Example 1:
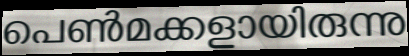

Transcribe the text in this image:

പെൺമക്കളായിരുന്നു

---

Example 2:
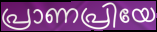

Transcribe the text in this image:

പ്രാണപ്രിയേ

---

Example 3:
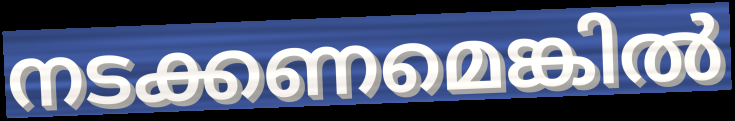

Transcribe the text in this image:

നടക്കണമെങ്കിൽ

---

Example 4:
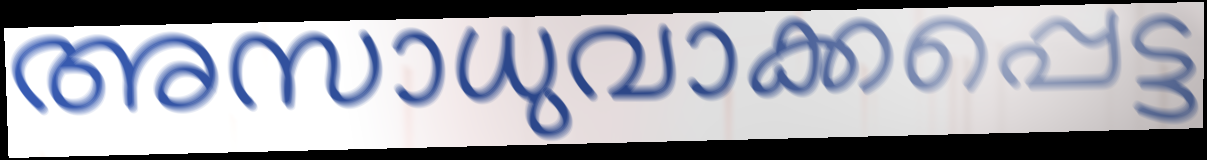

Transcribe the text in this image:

അസാധുവാക്കപ്പെട്ട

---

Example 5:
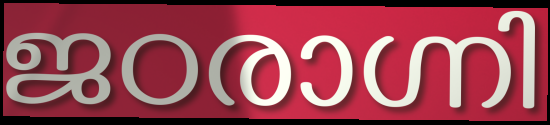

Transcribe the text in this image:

ജഠരാഗ്നി